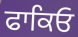
ਫਾਕਿਓ